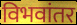
विभवांतर